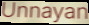
Unnayan